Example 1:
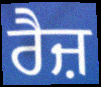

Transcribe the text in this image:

ਰੈਜ਼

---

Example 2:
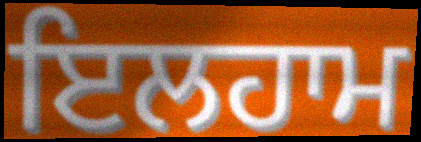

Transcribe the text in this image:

ਇਲਹਾਮ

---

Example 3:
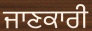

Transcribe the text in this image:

ਜਾਣਕਾਰੀ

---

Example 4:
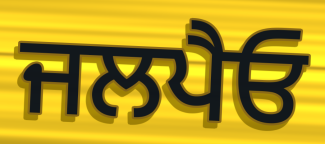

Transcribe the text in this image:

ਜਲਪੈਓ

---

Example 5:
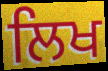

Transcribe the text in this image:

ਲਿਖ